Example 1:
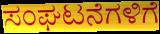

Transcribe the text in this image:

ಸಂಘಟನೆಗಳಿಗೆ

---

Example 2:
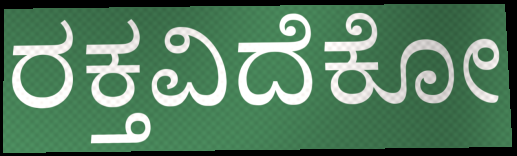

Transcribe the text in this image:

ರಕ್ತವಿದೆಕೋ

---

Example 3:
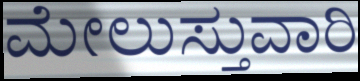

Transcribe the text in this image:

ಮೇಲುಸ್ತುವಾರಿ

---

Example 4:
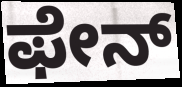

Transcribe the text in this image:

ಫೇನ್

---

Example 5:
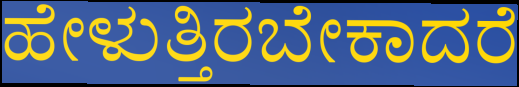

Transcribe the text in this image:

ಹೇಳುತ್ತಿರಬೇಕಾದರೆ